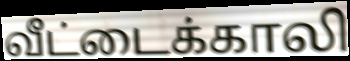
வீட்டைக்காலி